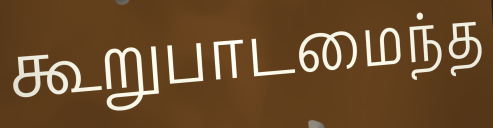
கூறுபாடமைந்த